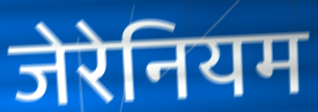
जेरेनियम